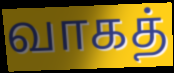
வாகத்